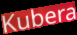
Kubera